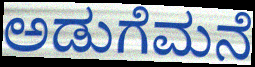
ಅಡುಗೆಮನೆ